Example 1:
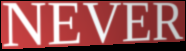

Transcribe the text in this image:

NEVER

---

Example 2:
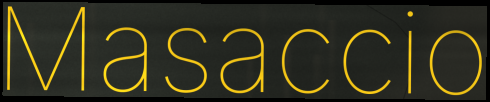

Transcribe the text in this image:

Masaccio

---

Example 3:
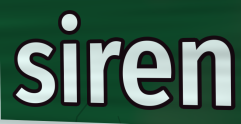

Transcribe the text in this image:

siren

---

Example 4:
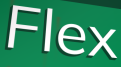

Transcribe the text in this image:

Flex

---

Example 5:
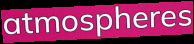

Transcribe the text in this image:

atmospheres